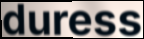
duress